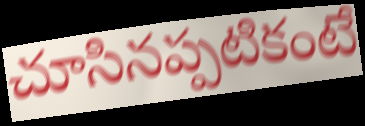
చూసినప్పటికంటే